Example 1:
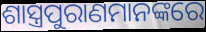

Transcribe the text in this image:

ଶାସ୍ତ୍ରପୁରାଣମାନଙ୍କରେ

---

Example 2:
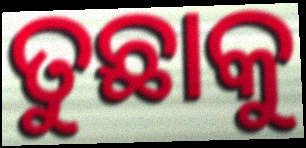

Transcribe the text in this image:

ତୁଛାକୁ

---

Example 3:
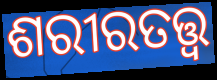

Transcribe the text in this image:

ଶରୀରତତ୍ତ୍ୱ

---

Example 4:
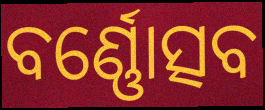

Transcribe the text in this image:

ବର୍ଣ୍ଣୋତ୍ସବ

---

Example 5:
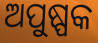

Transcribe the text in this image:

ଅପୁଷ୍ପକ